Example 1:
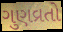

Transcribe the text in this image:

ગુણવ્રતો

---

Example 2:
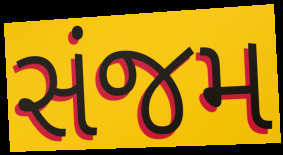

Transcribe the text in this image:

સંજમ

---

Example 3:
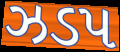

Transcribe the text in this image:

ઝડપ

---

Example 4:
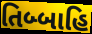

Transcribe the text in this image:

તિબ્બાહિ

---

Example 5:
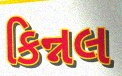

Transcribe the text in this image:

કિન્નલ